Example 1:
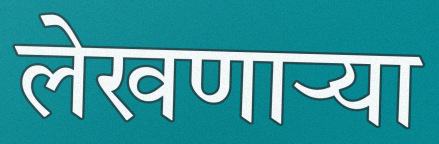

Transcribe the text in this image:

लेखणाऱ्या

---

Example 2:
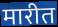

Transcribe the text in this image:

मारीत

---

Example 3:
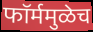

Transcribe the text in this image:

फॉर्ममुळेच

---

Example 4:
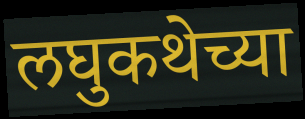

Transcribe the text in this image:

लघुकथेच्या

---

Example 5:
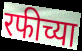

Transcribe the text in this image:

रफीच्या